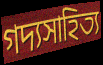
গদ্যসাহিত্য